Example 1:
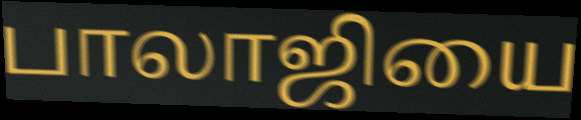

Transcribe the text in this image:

பாலாஜியை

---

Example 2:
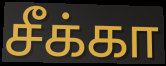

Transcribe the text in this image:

சீக்கா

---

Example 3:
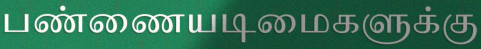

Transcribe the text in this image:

பண்ணையடிமைகளுக்கு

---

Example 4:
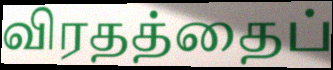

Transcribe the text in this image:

விரதத்தைப்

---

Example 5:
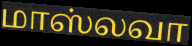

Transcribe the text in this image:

மாஸ்லவா